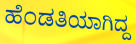
ಹೆಂಡತಿಯಾಗಿದ್ದ